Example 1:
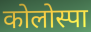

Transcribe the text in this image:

कोलोस्पा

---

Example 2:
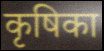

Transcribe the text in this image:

कृषिका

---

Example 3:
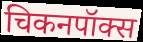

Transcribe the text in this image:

चिकनपॉक्स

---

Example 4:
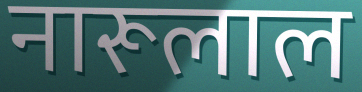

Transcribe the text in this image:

नारूलाल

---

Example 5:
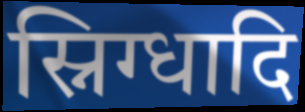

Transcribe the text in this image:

स्निग्धादि